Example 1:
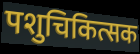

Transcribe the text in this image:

पशुचिकित्सक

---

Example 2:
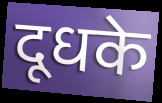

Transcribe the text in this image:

दूधके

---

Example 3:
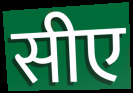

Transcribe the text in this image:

सीए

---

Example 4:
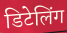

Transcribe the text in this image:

डिटेलिंग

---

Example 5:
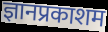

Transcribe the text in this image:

ज्ञानप्रकाशम